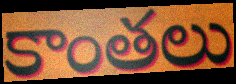
కాంతలు